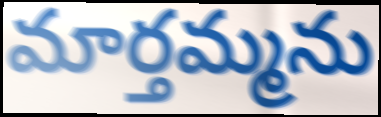
మార్తమ్మను